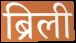
ब्रिली